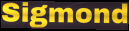
Sigmond